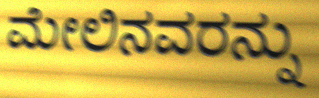
ಮೇಲಿನವರನ್ನು